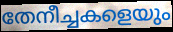
തേനീച്ചകളെയും